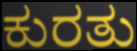
ಕುರತು